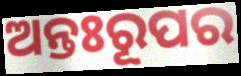
ଅନ୍ତଃରୂପର